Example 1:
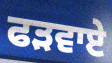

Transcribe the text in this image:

ਫੜਵਾਏ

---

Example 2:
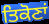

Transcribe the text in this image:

ਤਿਕੋਣਾਂ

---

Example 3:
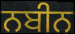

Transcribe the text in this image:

ਨਬੀਨ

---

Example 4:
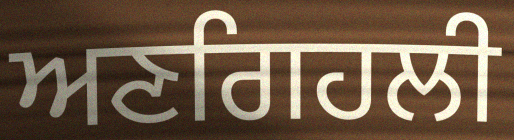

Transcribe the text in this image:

ਅਣਗਿਹਲੀ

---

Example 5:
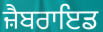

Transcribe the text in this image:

ਜ਼ੈਬਰਾਇਡ